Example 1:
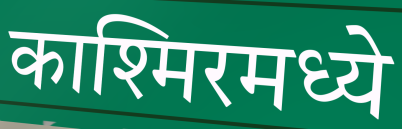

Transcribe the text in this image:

काश्मिरमध्ये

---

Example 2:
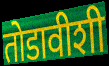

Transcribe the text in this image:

तोडावीशी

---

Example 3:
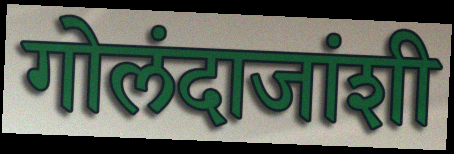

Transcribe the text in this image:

गोलंदाजांशी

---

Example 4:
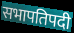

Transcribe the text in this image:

सभापतिपदी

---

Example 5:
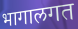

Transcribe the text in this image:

भागालगत